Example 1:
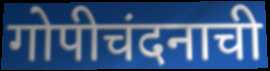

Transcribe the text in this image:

गोपीचंदनाची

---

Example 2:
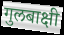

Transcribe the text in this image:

गुलबाक्षी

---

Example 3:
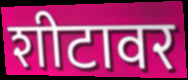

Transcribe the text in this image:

शीटावर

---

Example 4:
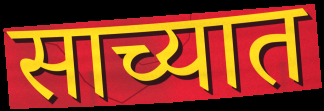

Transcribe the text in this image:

साच्यात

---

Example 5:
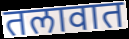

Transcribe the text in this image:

तलावात